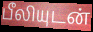
பீலியுடன்